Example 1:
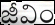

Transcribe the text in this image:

జీవిం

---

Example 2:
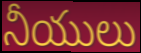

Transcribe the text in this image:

నీయులు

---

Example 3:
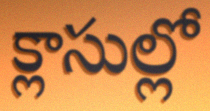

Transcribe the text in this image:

క్లాసుల్లో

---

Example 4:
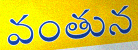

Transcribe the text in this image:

వంతున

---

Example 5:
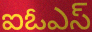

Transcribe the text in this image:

ఐఓఎస్